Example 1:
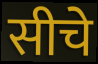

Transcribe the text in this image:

सीचे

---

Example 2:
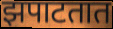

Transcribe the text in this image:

झपाटतात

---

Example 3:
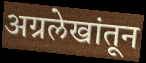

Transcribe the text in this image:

अग्रलेखांतून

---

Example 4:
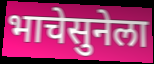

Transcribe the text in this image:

भाचेसुनेला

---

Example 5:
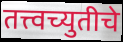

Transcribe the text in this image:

तत्त्वच्युतीचे